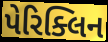
પેરિક્લિન